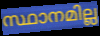
സ്ഥാനമില്ല